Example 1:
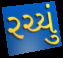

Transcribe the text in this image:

રચ્યું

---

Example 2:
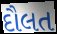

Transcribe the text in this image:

દૌલત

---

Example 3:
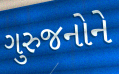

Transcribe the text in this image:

ગુરુજનોને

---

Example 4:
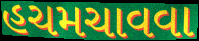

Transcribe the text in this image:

હચમચાવવા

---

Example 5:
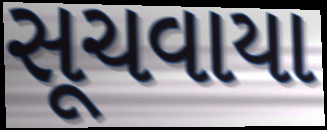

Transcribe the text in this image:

સૂચવાયા